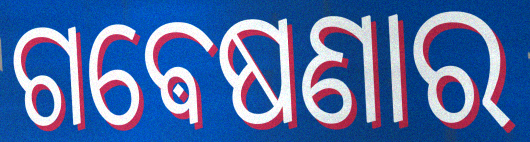
ଗଵେଷଣାର